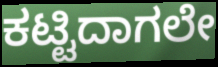
ಕಟ್ಟಿದಾಗಲೇ